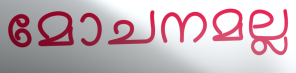
മോചനമല്ല